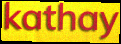
kathay